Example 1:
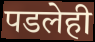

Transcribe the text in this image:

पडलेही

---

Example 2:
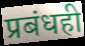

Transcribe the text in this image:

प्रबंधही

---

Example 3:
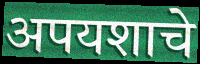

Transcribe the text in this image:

अपयशाचे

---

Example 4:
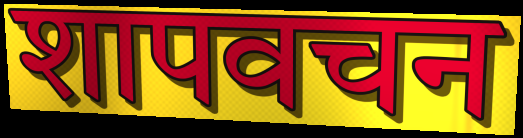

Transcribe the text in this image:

शापवचन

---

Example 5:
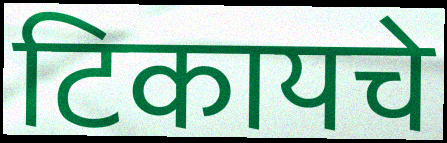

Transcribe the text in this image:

टिकायचे